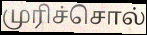
முரிச்சொல்